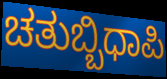
ಚತುಬ್ಬಿಧಾಪಿ